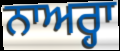
ਨਾਅਰ੍ਹਾ